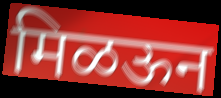
मिळऊन